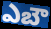
ఎబౌ